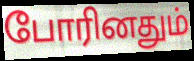
போரினதும்